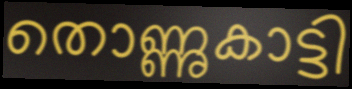
തൊണ്ണുകാട്ടി